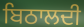
ਬਿਠਾਲਦੀ